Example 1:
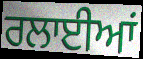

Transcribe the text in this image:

ਰਲਾਈਆਂ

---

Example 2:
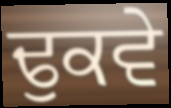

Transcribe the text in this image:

ਢੁਕਵੇ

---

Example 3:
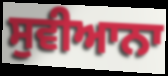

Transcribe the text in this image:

ਸੁਵੀਆਨਾ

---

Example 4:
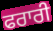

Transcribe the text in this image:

ਫਰਾਰੀ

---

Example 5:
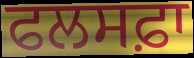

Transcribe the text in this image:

ਫਲਸਫ਼ਾ